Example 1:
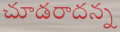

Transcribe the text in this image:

చూడరాదన్న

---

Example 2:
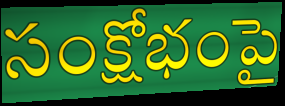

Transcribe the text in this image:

సంక్షోభంపై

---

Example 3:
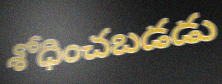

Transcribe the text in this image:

శోధించబడడు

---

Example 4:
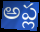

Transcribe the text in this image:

అప్ల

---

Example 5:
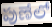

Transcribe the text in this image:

పుణేలో